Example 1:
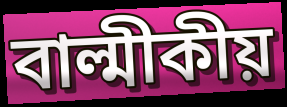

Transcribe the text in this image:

বাল্মীকীয়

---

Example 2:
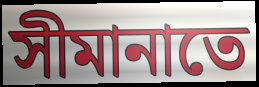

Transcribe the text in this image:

সীমানাতে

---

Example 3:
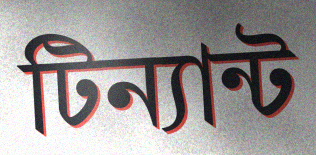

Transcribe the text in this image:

টিন্যান্ট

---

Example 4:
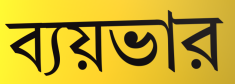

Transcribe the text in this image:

ব্যয়ভার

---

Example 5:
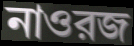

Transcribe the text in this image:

নাওরজ